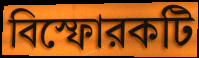
বিস্ফোরকটি